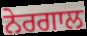
ਨੇਰਗਾਲ